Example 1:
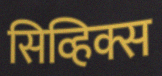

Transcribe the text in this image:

सिव्हिक्स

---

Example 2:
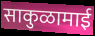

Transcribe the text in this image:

साकुळामाई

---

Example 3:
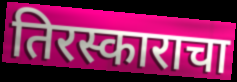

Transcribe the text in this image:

तिरस्काराचा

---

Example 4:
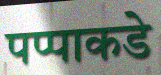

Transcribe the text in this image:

पप्पाकडे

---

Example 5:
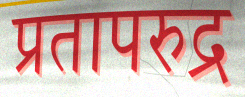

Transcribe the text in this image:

प्रतापरुद्र